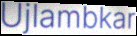
Ujlambkar